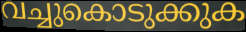
വച്ചുകൊടുക്കുക